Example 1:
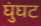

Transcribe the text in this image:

घुंघट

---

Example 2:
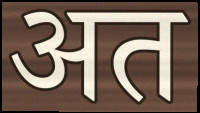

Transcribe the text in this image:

अत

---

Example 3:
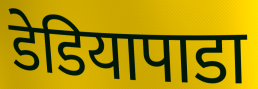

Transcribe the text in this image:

डेडियापाडा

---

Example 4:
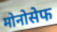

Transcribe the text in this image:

मोनोसेफ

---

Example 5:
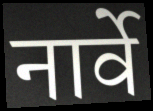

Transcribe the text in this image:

नार्वे